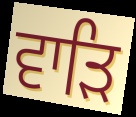
ਵਾੜਿ